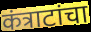
कंत्राटांचा